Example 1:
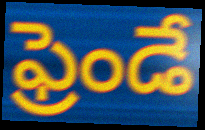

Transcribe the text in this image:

ఫ్రెండే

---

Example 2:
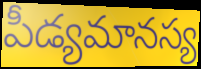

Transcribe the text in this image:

పీడ్యమానస్య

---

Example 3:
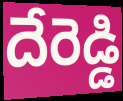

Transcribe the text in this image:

దేరెడ్డి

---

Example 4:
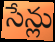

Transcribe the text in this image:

సేన్లు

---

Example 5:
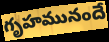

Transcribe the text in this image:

గృహమునందే